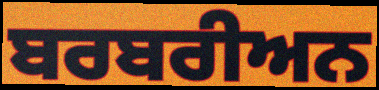
ਬਰਬਰੀਅਨ